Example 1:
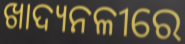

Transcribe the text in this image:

ଖାଦ୍ୟନଳୀରେ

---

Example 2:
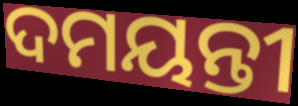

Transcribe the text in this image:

ଦମୟନ୍ତୀ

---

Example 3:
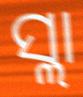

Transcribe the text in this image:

ସ୍ଲା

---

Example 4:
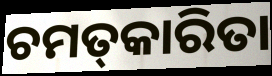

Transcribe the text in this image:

ଚମତ୍‌କାରିତା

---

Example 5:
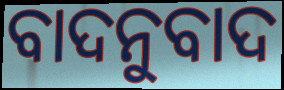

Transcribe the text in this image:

ବାଦନୁବାଦ